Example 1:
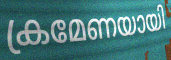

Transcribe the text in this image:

ക്രമേണയായി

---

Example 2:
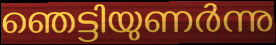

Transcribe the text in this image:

ഞെട്ടിയുണർന്നു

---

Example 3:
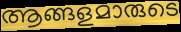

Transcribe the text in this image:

ആങ്ങളമാരുടെ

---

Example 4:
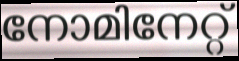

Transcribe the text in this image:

നോമിനേറ്റ്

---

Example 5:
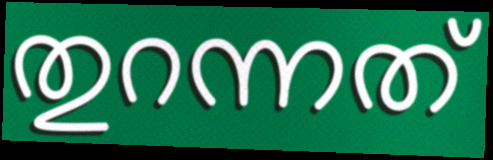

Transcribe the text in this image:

തുറന്നത്